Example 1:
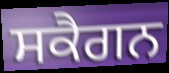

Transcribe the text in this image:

ਸਕੈਗਨ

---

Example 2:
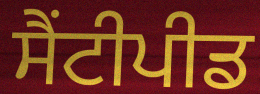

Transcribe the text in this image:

ਸੈਂਟੀਪੀਡ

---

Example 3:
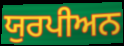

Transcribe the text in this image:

ਯੁਰਪੀਅਨ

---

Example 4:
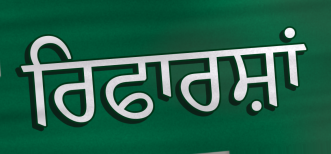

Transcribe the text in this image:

ਰਿਫਾਰਸ਼ਾਂ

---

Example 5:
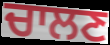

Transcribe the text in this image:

ਚਾਲਣ